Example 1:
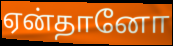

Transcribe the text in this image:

ஏன்தானோ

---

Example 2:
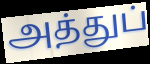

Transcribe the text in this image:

அத்துப்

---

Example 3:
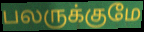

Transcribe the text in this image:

பலருக்குமே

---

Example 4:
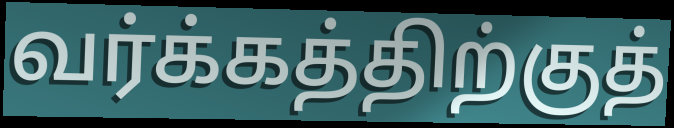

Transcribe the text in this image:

வர்க்கத்திற்குத்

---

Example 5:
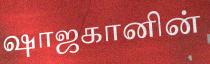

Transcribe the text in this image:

ஷாஜகானின்